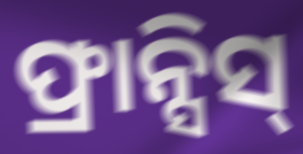
ଫ୍ରାନ୍ସିସ୍